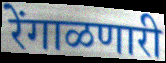
रेंगाळणारी